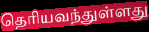
தெரியவந்துள்ளது